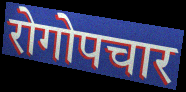
रोगोपचार